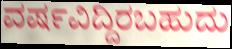
ವರ್ಷವಿದ್ದಿರಬಹುದು